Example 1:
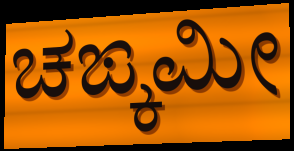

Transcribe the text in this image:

ಚಙ್ಕಮೀ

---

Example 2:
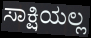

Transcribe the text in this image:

ಸಾಕ್ಷಿಯಲ್ಲ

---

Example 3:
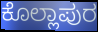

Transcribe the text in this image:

ಕೊಲ್ಲಾಪುರ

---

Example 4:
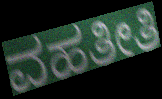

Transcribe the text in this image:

ವಹತೀತಿ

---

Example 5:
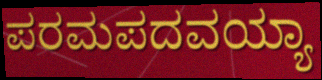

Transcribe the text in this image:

ಪರಮಪದವಯ್ಯಾ